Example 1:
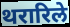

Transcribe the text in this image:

थरारिले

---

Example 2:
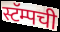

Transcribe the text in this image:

स्टॅम्पची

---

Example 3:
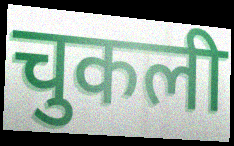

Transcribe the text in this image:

चुकली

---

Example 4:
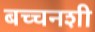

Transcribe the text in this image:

बच्चनशी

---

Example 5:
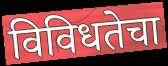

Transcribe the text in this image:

विविधतेचा